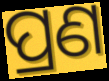
ପ୍ରଣ